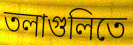
তলাগুলিতে